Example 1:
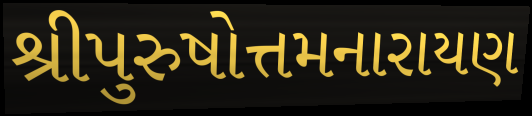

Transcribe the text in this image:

શ્રીપુરુષોત્તમનારાયણ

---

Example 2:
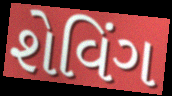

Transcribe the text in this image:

શેવિંગ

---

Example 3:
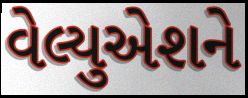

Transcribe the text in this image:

વેલ્યુએશને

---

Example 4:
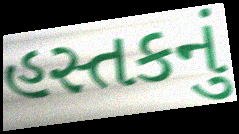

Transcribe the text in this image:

હસ્તકનું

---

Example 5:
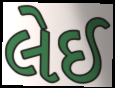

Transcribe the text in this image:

લેઈ